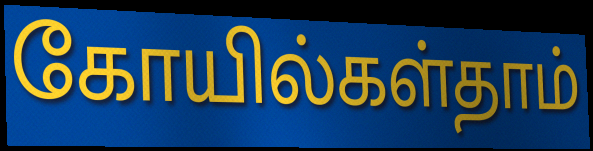
கோயில்கள்தாம்